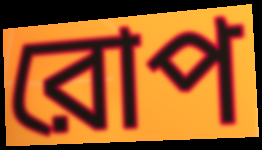
রোপ